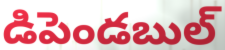
డిపెండబుల్